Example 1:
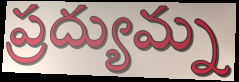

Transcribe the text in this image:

ప్రద్యుమ్న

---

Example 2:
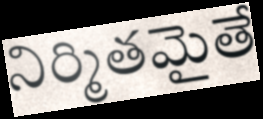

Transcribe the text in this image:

నిర్మితమైతే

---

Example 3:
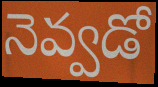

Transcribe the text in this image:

నెవ్వడో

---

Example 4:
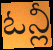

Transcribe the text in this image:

ఓన్లీ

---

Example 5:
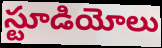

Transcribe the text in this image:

స్టూడియోలు